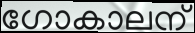
ഗോകാലന്